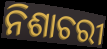
ନିଶାଚରୀ